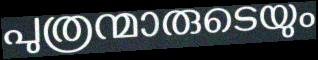
പുത്രന്മാരുടെയും